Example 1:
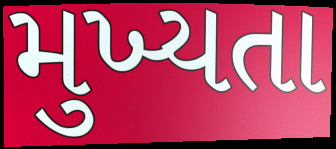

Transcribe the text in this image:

મુખ્યતા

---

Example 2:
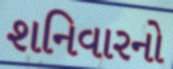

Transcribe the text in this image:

શનિવારનો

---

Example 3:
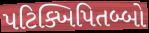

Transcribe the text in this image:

પટિક્ખિપિતબ્બો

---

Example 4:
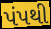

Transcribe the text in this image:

પંપથી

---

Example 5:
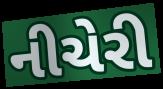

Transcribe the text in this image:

નીચેરી